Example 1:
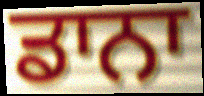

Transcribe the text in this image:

ਡਾਨਾ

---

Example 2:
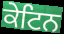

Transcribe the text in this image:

ਕੇਟਿਨ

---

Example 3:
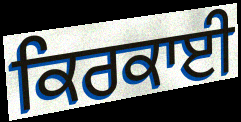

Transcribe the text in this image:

ਕਿਰਕਾਈ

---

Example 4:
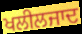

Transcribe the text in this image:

ਖਲੀਲਜਾਦ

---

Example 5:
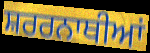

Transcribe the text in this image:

ਸ਼ਰਰਨਾਥੀਆਂ